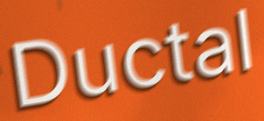
Ductal